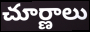
చూర్ణాలు